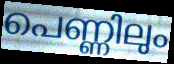
പെണ്ണിലും